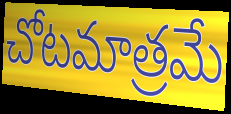
చోటమాత్రమే